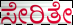
ಸೇರಿತೇ